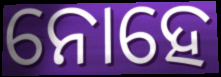
ନୋହେ